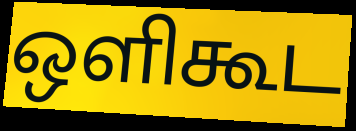
ஒளிகூட